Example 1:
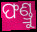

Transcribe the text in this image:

ଫଣ୍ଡ୍ରୁ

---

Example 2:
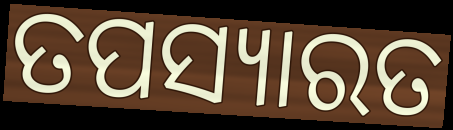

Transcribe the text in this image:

ତପସ୍ୟାରତ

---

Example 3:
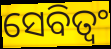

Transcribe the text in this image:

ସେବିତ୍ୱଂ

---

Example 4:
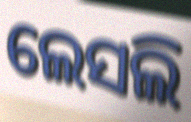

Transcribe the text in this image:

ଲେସଲି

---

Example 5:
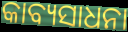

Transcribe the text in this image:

କାବ୍ୟସାଧନା